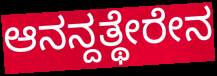
ಆನನ್ದತ್ಥೇರೇನ